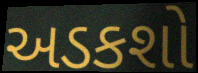
અડકશો